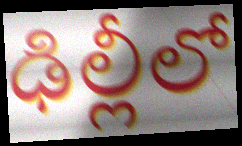
ఢిల్లీలో